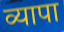
व्यापा